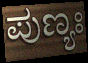
ಪುಣ್ಯಃ